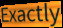
Exactly